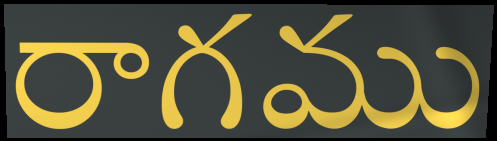
రాగము